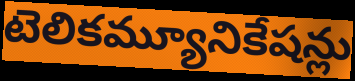
టెలికమ్యూనికేషన్లు